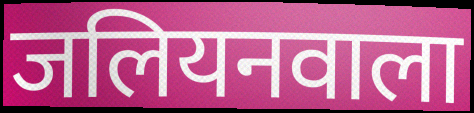
जलियनवाला